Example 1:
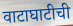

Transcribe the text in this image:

वाटाघाटीची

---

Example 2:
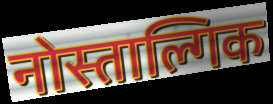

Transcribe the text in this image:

नोस्ताल्गिक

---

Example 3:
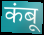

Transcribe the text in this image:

कंबू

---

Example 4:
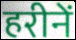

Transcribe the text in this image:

हरीनें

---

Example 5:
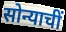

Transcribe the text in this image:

सोन्याचीं